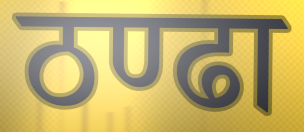
ठण्ढा